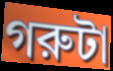
গরুটা